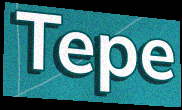
Tepe